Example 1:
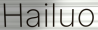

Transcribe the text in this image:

Hailuo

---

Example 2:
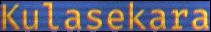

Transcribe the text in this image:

Kulasekara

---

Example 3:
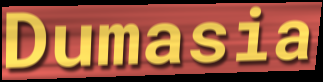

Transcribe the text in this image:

Dumasia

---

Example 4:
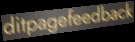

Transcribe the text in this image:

ditpagefeedback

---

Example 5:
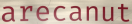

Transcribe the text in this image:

arecanut